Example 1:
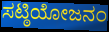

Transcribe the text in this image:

ಸಟ್ಠಿಯೋಜನಂ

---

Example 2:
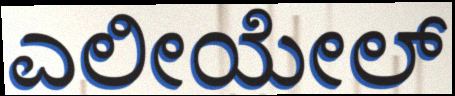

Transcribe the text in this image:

ಎಲೀಯೇಲ್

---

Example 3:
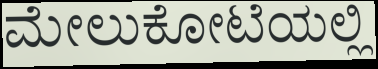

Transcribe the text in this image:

ಮೇಲುಕೋಟೆಯಲ್ಲಿ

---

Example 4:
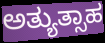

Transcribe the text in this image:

ಅತ್ಯುತ್ಸಾಹ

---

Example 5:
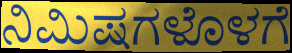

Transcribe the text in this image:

ನಿಮಿಷಗಳೊಳಗೆ